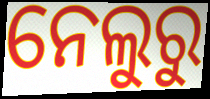
ନେଲୁରୁ